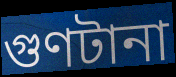
গুণটানা